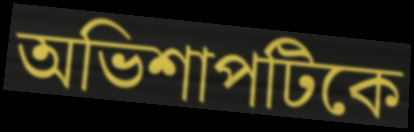
অভিশাপটিকে